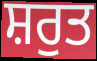
ਸ਼ਰੁਤ